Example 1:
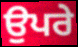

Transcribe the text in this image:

ਉਪਰੇ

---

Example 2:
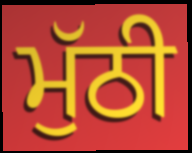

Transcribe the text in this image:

ਮੁੱਠੀ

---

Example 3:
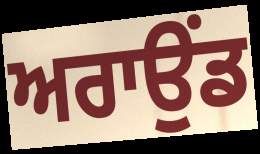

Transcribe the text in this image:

ਅਰਾਉਂਡ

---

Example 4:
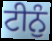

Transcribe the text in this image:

ਟੀਨੁੰ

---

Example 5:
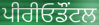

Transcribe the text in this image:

ਪੀਰੀਓਡੌਂਟਲ